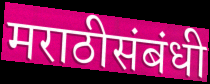
मराठीसंबंधी